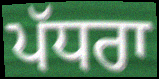
ਪੱਧਰਾ